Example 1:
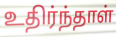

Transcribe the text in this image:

உதிர்ந்தாள்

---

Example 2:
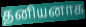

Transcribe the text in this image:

தனியனாக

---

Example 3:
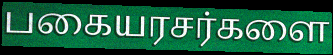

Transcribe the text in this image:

பகையரசர்களை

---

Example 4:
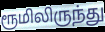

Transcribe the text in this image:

ரூமிலிருந்து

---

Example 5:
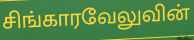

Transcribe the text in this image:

சிங்காரவேலுவின்